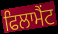
ਫਿਲਾਮੈਂਟ